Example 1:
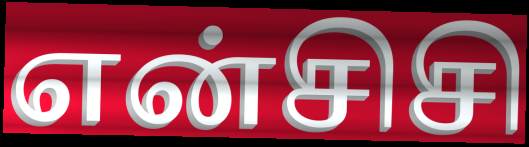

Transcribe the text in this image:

என்சிசி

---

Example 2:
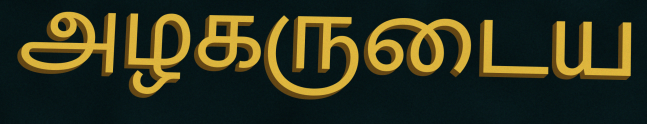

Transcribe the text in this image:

அழகருடைய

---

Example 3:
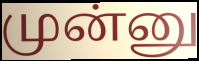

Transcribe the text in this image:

முன்னு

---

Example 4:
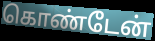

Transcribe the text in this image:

கொண்டேன்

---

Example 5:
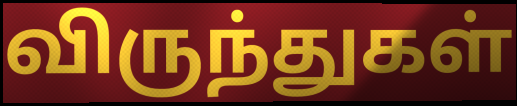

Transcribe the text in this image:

விருந்துகள்